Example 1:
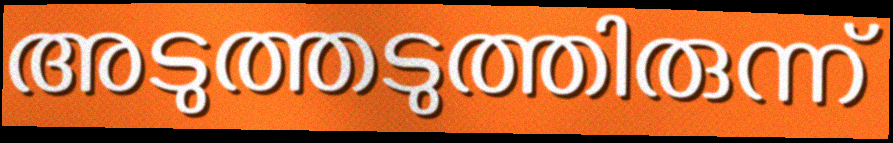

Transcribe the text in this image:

അടുത്തടുത്തിരുന്ന്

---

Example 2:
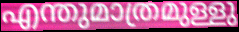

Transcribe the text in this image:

എന്തുമാത്രമുള്ളു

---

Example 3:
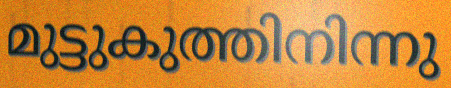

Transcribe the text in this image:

മുട്ടുകുത്തിനിന്നു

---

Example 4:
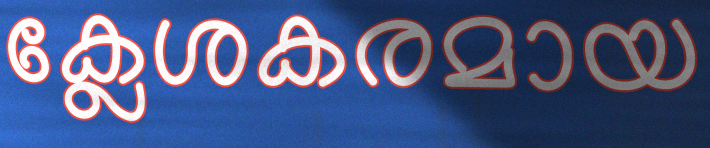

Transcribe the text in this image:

ക്ലേശകരമായ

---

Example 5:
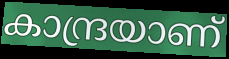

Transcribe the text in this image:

കാന്ദ്രയാണ്